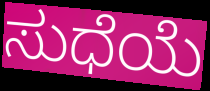
ಸುಧೆಯೆ